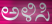
ಅಳಿಸಿ